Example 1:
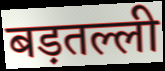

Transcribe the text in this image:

बड़तल्ली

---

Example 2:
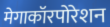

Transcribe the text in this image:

मेगाकॉरपोरेशन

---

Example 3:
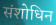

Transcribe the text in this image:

संशोधिन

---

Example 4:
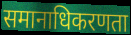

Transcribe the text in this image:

समानाधिकरणता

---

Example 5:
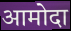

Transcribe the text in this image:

आमोदा